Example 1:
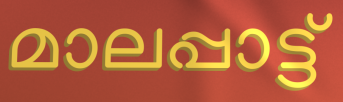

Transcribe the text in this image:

മാലപ്പാട്ട്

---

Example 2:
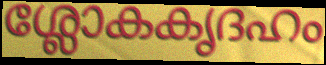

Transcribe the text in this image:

ശ്ലോകകൃദഹം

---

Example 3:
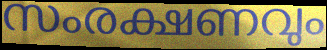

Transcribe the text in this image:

സംരക്ഷണവും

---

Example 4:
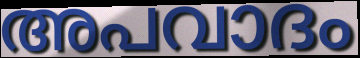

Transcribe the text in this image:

അപവാദം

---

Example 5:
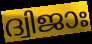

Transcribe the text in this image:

ദ്വിജാഃ